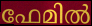
ഫേമിൽ